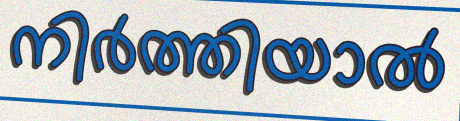
നിർത്തിയാൽ